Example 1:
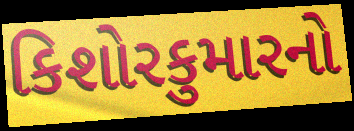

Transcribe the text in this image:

કિશોરકુમારનો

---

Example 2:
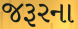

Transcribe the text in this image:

જરૂરના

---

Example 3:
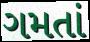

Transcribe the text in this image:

ગમતાં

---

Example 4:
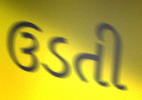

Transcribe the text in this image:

ઉડતી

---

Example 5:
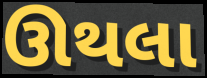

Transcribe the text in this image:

ઊથલા